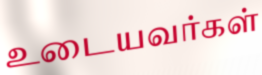
உடையவர்கள்